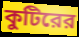
কুটিরের